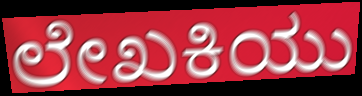
ಲೇಖಕಿಯು